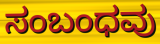
ಸಂಬಂಧವು